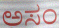
ಅಸಂ